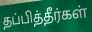
தப்பித்தீர்கள்